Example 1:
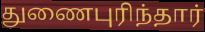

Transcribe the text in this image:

துணைபுரிந்தார்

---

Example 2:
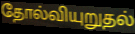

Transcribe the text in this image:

தோல்வியுறுதல்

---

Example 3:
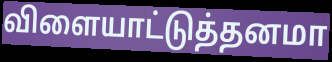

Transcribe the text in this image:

விளையாட்டுத்தனமா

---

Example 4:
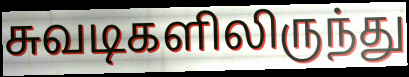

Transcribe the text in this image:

சுவடிகளிலிருந்து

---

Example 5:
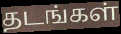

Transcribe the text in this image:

தடங்கள்